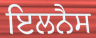
ਇਲਨੈਸ